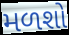
મળશો